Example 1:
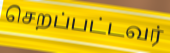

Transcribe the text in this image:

செறப்பட்டவர்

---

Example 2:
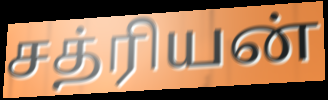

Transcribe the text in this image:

சத்ரியன்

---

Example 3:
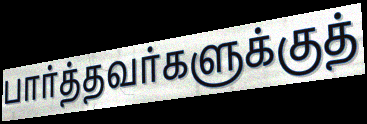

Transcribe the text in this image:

பார்த்தவர்களுக்குத்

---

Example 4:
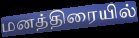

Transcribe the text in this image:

மனத்திரையில்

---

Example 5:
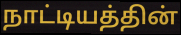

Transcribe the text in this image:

நாட்டியத்தின்